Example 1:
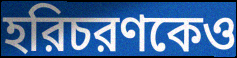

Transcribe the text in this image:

হরিচরণকেও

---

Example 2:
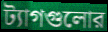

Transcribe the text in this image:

ট্যাগগুলোর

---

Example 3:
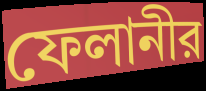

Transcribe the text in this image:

ফেলানীর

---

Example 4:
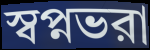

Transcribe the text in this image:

স্বপ্নভরা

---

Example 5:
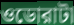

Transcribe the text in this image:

ওডোরাটা